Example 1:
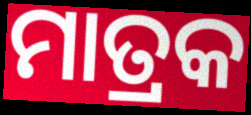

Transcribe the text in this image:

ମାତ୍ରକ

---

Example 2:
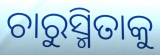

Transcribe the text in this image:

ଚାରୁସ୍ମିତାକୁ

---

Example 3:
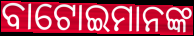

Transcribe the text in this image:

ବାଟୋଇମାନଙ୍କ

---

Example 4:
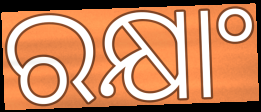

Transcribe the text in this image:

ରକ୍ଷାଂ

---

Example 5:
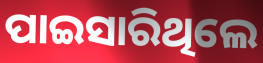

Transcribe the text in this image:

ପାଇସାରିଥିଲେ